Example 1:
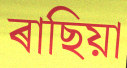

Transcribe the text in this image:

ৰাছিয়া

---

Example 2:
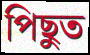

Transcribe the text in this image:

পিছুত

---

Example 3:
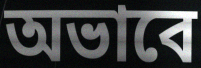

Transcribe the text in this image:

অভাবে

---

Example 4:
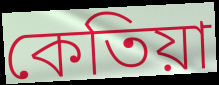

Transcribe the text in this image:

কেতিয়া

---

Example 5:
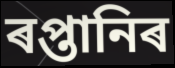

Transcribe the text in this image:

ৰপ্তানিৰ